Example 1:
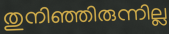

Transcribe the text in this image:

തുനിഞ്ഞിരുന്നില്ല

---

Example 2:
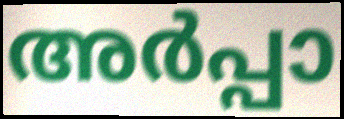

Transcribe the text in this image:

അർപ്പാ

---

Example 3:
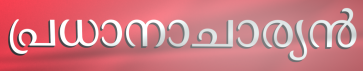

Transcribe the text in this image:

പ്രധാനാചാര്യൻ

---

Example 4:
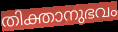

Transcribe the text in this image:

തിക്താനുഭവം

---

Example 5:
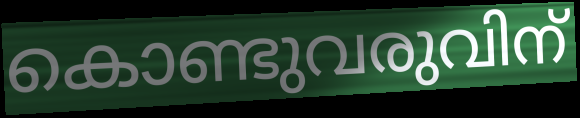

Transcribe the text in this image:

കൊണ്ടുവരുവിന്